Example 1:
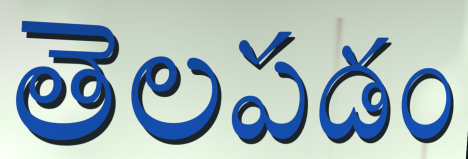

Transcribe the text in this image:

తెలపడం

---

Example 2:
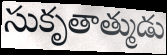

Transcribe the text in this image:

సుకృతాత్ముడు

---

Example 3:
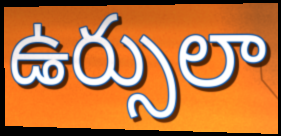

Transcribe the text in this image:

ఉర్సులా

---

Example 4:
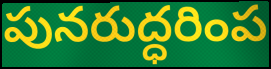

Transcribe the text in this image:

పునరుద్ధరింప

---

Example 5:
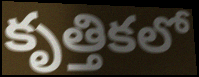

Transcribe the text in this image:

కృత్తికలో